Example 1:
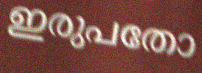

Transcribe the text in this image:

ഇരുപതോ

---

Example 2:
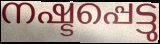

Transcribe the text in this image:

നഷ്ടപ്പെട്ടു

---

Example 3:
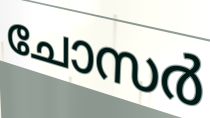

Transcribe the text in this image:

ചോസർ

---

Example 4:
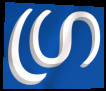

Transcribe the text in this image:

ഗ്ര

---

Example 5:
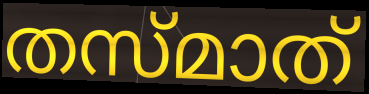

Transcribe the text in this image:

തസ്മാത്